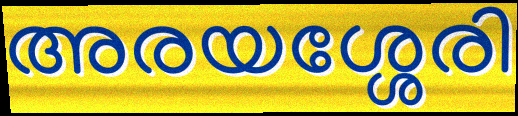
അരയശ്ശേരി